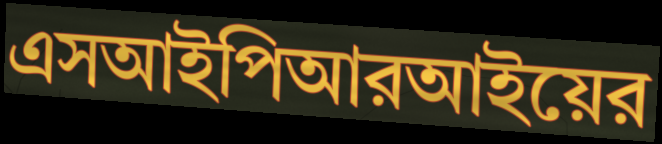
এসআইপিআরআইয়ের